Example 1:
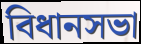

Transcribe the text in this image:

বিধানসভা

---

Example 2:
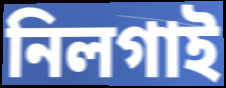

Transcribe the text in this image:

নিলগাই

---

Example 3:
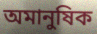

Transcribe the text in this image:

অমানুষিক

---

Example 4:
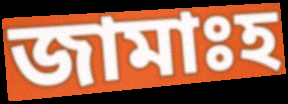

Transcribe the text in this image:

জামাঃহ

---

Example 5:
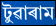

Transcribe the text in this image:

টুৱাৰাম